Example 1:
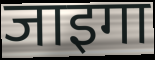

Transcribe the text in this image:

जाइगा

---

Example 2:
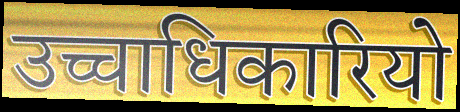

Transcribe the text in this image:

उच्चाधिकारियो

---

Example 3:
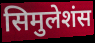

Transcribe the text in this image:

सिमुलेशंस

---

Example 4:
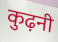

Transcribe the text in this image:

कुढ़नी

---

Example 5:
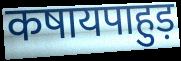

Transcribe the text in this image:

कषायपाहुड़